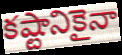
కష్టానికైనా